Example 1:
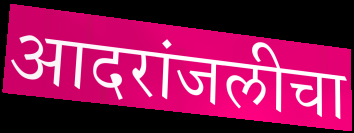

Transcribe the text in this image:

आदरांजलीचा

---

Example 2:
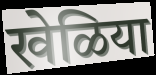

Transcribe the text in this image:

खेळिया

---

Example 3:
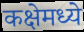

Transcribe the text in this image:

कक्षेमध्ये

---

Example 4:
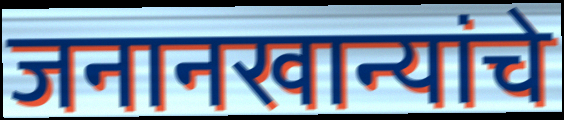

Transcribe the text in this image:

जनानखान्यांचे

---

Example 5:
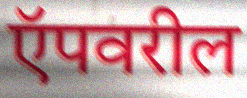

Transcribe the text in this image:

ऍपवरील